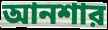
আনশার